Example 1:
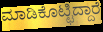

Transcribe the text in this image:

ಮಾಡಿಕೊಟ್ಟಿದ್ದಾರೆ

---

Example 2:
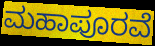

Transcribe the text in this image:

ಮಹಾಪೂರವೆ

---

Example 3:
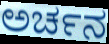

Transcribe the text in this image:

ಅರ್ಚನ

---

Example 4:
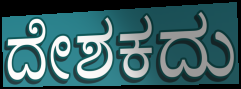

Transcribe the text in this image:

ದೇಶಕದು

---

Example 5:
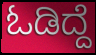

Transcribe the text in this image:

ಓಡಿದ್ದೆ